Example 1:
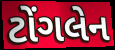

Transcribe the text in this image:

ટોંગલેન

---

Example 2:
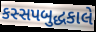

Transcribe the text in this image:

કસ્સપબુદ્ધકાલે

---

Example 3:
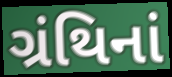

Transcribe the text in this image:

ગ્રંથિનાં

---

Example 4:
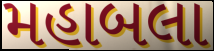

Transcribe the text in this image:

મહાબલા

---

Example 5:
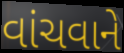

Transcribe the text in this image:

વાંચવાને